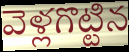
వెళ్లగొట్టిన